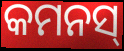
କମନସ୍